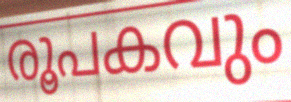
രൂപകവും